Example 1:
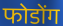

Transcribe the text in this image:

फोडोंग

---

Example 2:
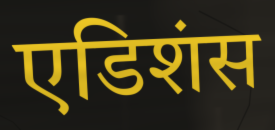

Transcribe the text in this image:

एडिशंस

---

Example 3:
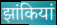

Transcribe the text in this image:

झांकियां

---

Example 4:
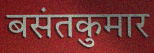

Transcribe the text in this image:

बसंतकुमार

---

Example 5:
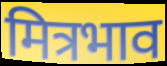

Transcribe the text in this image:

मित्रभाव